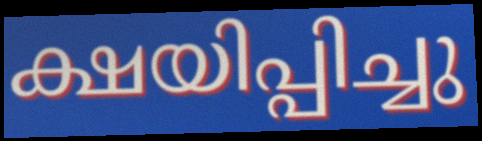
ക്ഷയിപ്പിച്ചു